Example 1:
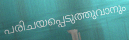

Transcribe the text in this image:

പരിചയപ്പെടുത്തുവാനും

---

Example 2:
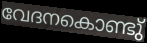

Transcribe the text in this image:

വേദനകൊണ്ടു്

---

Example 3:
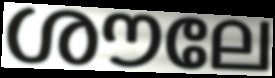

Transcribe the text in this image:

ശൗലേ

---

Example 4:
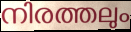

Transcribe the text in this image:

നിരത്തലും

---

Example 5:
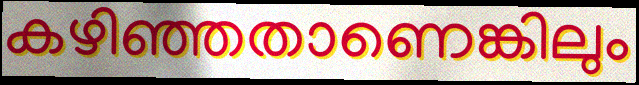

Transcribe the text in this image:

കഴിഞ്ഞതാണെങ്കിലും